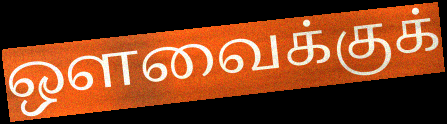
ஔவைக்குக்